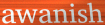
awanish